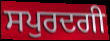
ਸਪੁਰਦਗੀ